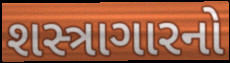
શસ્ત્રાગારનો